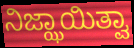
ನಿಜ್ಝಾಯಿತ್ವಾ